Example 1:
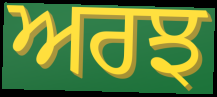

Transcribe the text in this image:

ਅਰਝ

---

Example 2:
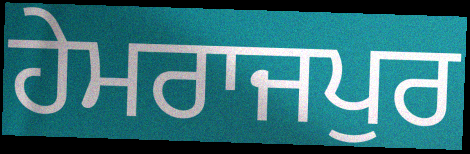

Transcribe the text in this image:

ਹੇਮਰਾਜਪੁਰ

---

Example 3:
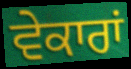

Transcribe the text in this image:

ਵੇਕਾਰਾਂ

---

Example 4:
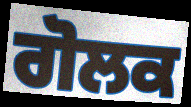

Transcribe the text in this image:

ਗੋਲਕ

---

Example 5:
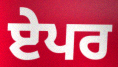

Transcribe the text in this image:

ਏਪਰ